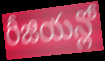
రీజియన్లో